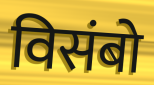
विसंबो